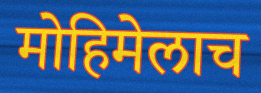
मोहिमेलाच